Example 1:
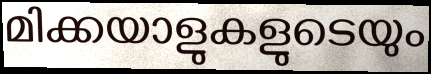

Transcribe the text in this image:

മിക്കയാളുകളുടെയും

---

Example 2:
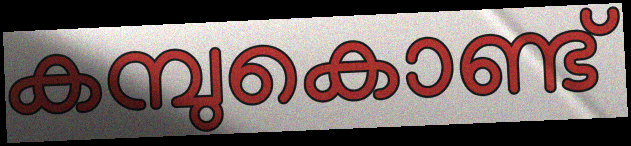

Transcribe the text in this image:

കമ്പുകൊണ്ട്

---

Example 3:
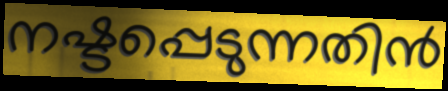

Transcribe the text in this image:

നഷ്ടപ്പെടുന്നതിൻ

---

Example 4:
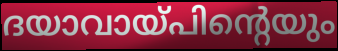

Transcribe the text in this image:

ദയാവായ്പിന്റെയും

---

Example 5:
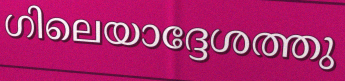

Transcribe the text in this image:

ഗിലെയാദ്ദേശത്തു